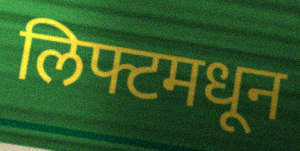
लिफ्टमधून